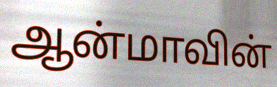
ஆன்மாவின்